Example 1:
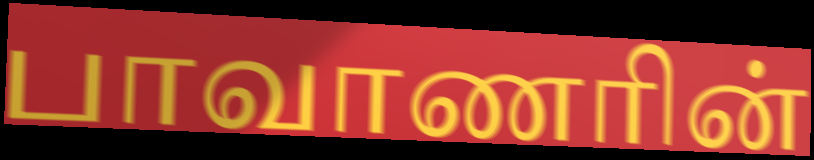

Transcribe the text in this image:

பாவாணரின்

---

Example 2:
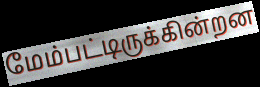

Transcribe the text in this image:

மேம்பட்டிருக்கின்றன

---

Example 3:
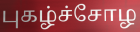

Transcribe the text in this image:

புகழ்ச்சோழ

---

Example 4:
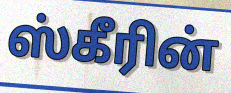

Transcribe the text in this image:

ஸ்கீரின்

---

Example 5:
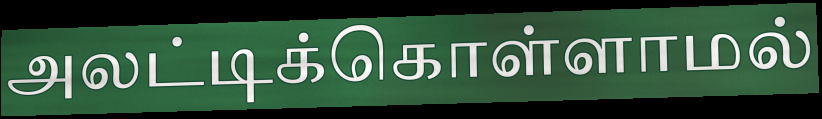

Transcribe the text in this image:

அலட்டிக்கொள்ளாமல்